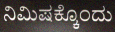
ನಿಮಿಷಕ್ಕೊಂದು